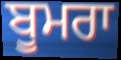
ਬੂਮਰਾ